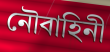
নৌবাহিনী